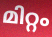
മിറ്റം